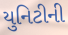
યુનિટીની